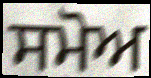
ਸਮੋਅ